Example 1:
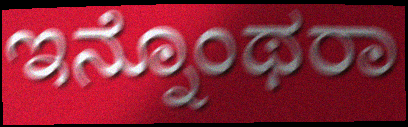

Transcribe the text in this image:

ಇನ್ನೊಂಥರಾ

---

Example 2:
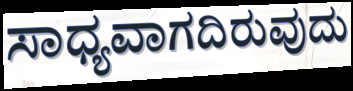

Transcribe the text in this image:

ಸಾಧ್ಯವಾಗದಿರುವುದು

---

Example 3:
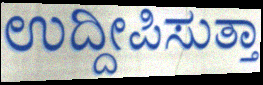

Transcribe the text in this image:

ಉದ್ದೀಪಿಸುತ್ತಾ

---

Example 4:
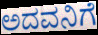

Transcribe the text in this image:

ಅದವನಿಗೆ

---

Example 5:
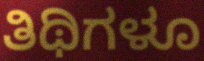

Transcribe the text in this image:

ತಿಥಿಗಳೂ